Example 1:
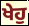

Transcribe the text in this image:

ਖੇਹੁ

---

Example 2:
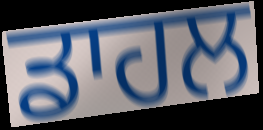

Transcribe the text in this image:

ਡਾਹਲ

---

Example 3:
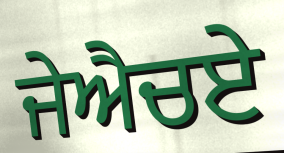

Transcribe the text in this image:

ਜੇਐਚਏ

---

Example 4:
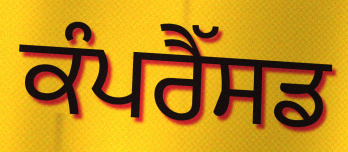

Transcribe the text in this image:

ਕੰਪਰੈੱਸਡ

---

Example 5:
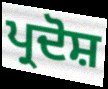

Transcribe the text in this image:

ਪ੍ਰਦੋਸ਼